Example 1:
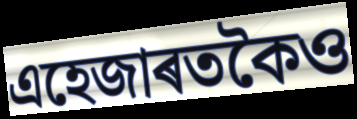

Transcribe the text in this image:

এহেজাৰতকৈও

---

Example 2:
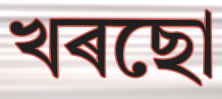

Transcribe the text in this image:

খৰছো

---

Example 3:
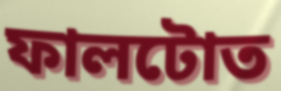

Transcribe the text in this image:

ফালটোত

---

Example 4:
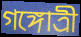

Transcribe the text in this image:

গঙ্গোত্ৰী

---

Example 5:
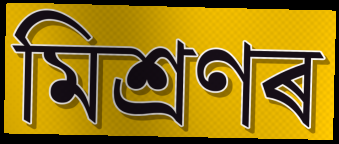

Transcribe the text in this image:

মিশ্ৰণৰ